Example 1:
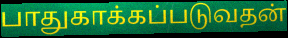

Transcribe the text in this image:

பாதுகாக்கப்படுவதன்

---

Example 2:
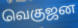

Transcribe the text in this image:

வெகுஜன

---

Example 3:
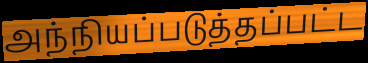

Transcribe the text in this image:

அந்நியப்படுத்தப்பட்ட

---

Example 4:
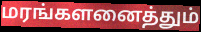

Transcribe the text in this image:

மரங்களனைத்தும்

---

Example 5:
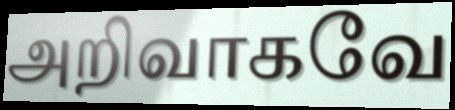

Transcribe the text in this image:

அறிவாகவே